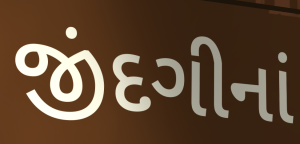
જીંદગીનાં